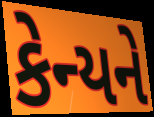
કેન્યને